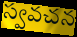
స్వవచన